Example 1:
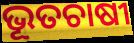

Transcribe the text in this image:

ଭୂତଚାଷୀ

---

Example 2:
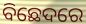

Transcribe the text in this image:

ବିଛେଦରେ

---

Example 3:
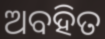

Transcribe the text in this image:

ଅବହିତ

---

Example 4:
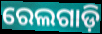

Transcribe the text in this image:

ରେଲଗାଡ଼ି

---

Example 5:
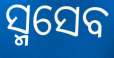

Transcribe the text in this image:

ସ୍ମସେବ